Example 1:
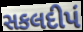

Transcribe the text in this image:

સકલદીપં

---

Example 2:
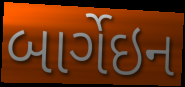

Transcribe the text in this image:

બાર્ગેઇન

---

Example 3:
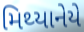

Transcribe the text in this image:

મિથ્યાનેયે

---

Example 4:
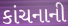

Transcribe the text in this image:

કાંચનાની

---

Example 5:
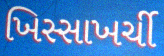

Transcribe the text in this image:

ખિસ્સાખર્ચી